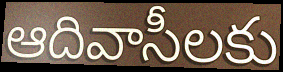
ఆదివాసీలకు